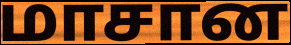
மாசான